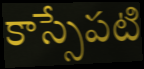
కాస్సేపటి